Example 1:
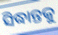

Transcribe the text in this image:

ସିଦ୍ଧାନ୍ତକୁ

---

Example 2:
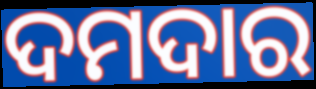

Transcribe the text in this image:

ଦମଦାର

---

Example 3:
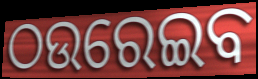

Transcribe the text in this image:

ଠଉରେଇବ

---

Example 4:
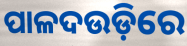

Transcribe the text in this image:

ପାଳଦଉଡ଼ିରେ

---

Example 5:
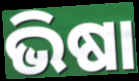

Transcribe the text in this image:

ଭିଷା